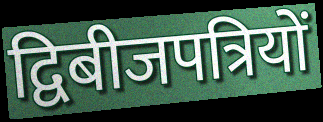
द्विबीजपत्रियों